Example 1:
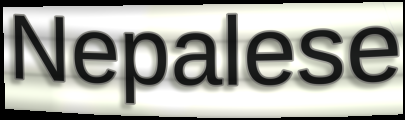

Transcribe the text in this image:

Nepalese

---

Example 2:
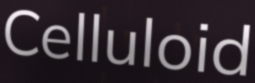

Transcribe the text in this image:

Celluloid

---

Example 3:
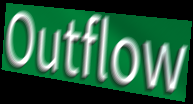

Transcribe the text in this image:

Outflow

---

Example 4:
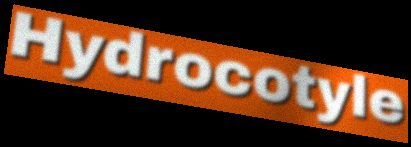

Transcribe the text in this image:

Hydrocotyle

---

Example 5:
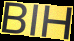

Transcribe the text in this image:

BIH